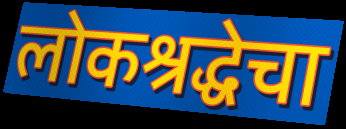
लोकश्रद्धेचा